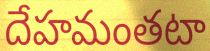
దేహమంతటా